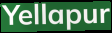
Yellapur